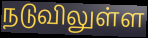
நடுவிலுள்ள